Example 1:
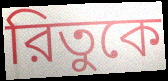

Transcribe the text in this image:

রিতুকে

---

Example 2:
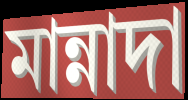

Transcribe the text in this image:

মান্নাদা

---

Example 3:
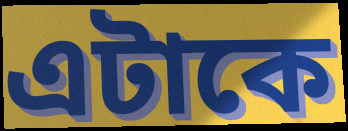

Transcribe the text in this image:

এটাকে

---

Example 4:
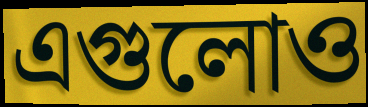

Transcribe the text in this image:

এগুলোও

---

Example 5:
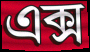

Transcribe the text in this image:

এক্স